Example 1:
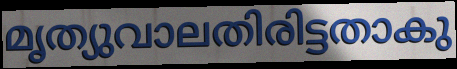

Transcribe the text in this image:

മൃത്യുവാലതിരിട്ടതാകു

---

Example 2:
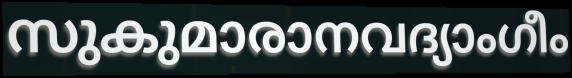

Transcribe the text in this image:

സുകുമാരാനവദ്യാംഗീം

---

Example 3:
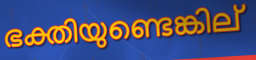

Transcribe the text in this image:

ഭക്തിയുണ്ടെങ്കില്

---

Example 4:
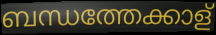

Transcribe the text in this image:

ബന്ധത്തേക്കാള്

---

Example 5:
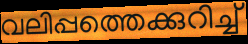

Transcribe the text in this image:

വലിപ്പത്തെക്കുറിച്ച്